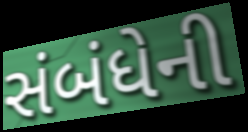
સંબંધેની